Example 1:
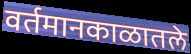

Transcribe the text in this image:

वर्तमानकाळातले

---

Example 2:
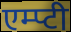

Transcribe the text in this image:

एम्प्टी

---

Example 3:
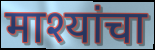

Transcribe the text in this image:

माश्यांचा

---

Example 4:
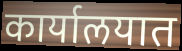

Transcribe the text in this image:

कार्यालयात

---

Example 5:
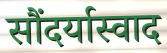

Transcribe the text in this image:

सौंदर्यास्वाद